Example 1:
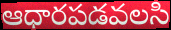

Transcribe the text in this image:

ఆధారపడవలసి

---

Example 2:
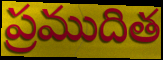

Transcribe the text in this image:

ప్రముదిత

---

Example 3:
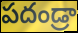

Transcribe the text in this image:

పదండ్రా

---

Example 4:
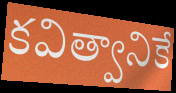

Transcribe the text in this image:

కవిత్వానికే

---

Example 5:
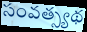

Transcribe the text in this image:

సంవత్స్యథ